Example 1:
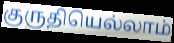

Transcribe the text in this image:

குருதியெல்லாம்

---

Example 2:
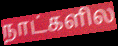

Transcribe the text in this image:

நாட்களில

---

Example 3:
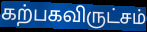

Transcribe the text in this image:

கற்பகவிருட்சம்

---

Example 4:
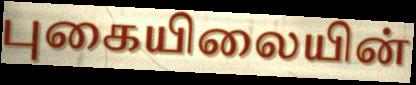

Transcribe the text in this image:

புகையிலையின்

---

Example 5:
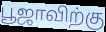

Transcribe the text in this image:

பூஜாவிற்கு